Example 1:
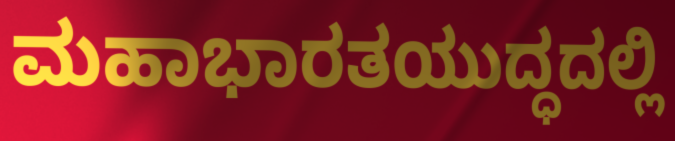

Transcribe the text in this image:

ಮಹಾಭಾರತಯುದ್ಧದಲ್ಲಿ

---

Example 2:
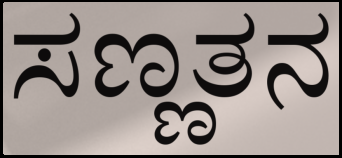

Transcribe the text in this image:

ಸಣ್ಣತನ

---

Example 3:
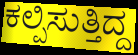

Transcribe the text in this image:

ಕಲ್ಪಿಸುತ್ತಿದ್ದ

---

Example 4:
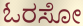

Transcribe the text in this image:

ಓರಸೋ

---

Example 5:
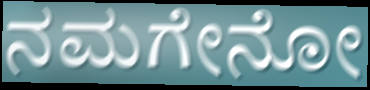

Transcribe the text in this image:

ನಮಗೇನೋ